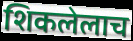
शिकलेलाच